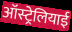
ऑस्‍ट्रेलियाई